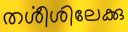
തൎശീശിലേക്കു